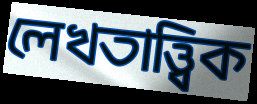
লেখতাত্ত্বিক